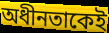
অধীনতাকেই